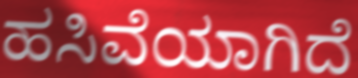
ಹಸಿವೆಯಾಗಿದೆ